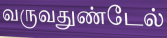
வருவதுண்டேல்